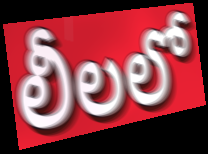
లీలలో